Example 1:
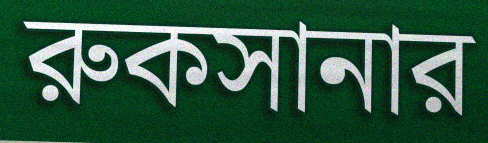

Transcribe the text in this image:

রুকসানার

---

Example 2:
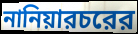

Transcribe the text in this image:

নানিয়ারচরের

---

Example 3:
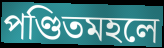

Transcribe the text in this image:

পণ্ডিতমহলে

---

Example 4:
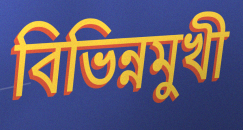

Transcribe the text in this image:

বিভিন্নমুখী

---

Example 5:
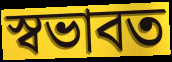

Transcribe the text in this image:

স্বভাবত